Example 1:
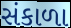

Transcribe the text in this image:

સંકાળા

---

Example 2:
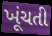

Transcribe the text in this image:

ખૂંચતી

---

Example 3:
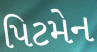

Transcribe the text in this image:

પિટમેન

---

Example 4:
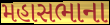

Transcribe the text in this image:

મહાસભાના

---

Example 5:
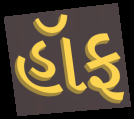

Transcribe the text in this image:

હૉફ